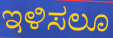
ಇಳಿಸಲೂ